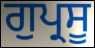
ਗੁਪ੍ਰਸੂ